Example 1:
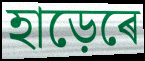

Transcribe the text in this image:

হাড়েৰে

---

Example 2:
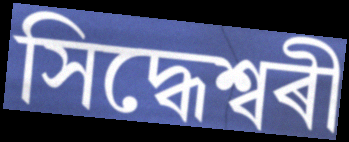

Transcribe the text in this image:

সিদ্ধেশ্বৰী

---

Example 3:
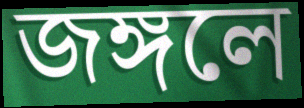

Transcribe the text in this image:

জঙ্গলে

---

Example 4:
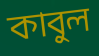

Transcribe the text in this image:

কাবুল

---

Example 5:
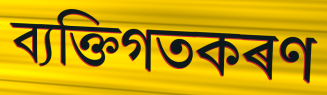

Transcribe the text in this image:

ব্যক্তিগতকৰণ